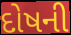
દોષની